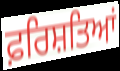
ਫ਼ਰਿਸ਼ਤਿਆਂ